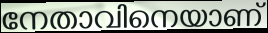
നേതാവിനെയാണ്